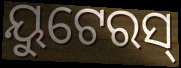
ୟୁଟେରସ୍